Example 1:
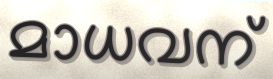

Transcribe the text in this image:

മാധവന്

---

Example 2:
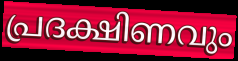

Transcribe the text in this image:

പ്രദക്ഷിണവും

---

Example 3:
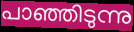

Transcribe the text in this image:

പാഞ്ഞിടുന്നു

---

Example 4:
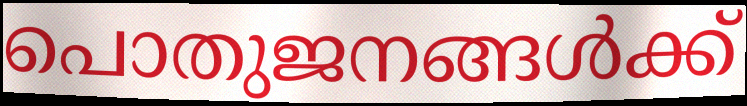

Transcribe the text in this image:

പൊതുജനങ്ങൾക്ക്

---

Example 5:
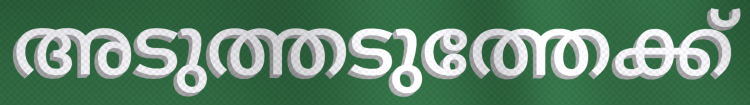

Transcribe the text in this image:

അടുത്തടുത്തേക്ക്